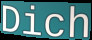
Dich